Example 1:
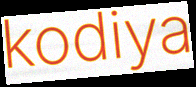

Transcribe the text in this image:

kodiya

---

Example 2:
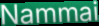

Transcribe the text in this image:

Nammai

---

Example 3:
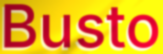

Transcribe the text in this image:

Busto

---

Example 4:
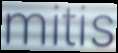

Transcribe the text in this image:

mitis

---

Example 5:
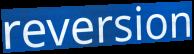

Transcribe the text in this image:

reversion